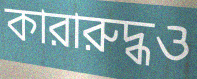
কারারুদ্ধও